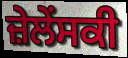
ਜ਼ੇਲੇਂਸਕੀ